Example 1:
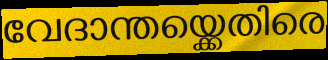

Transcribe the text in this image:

വേദാന്തയ്ക്കെതിരെ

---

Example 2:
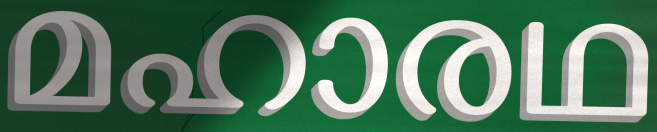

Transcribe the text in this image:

മഹാരഥ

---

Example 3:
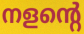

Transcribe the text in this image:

നളന്റെ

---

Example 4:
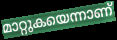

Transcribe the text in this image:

മാറ്റുകയെന്നാണ്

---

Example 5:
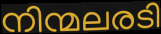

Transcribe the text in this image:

നിന്മലരടി